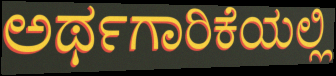
ಅರ್ಥಗಾರಿಕೆಯಲ್ಲಿ